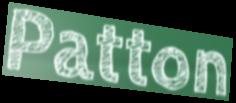
Patton